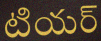
టియర్